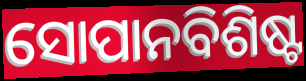
ସୋପାନବିଶିଷ୍ଟ